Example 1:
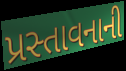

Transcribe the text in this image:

પ્રસ્તાવનાની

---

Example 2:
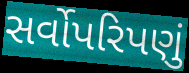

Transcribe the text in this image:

સર્વોપરિપણું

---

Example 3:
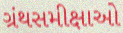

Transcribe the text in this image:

ગ્રંથસમીક્ષાઓ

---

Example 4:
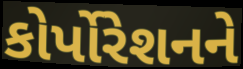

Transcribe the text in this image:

કોર્પોરેશનને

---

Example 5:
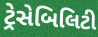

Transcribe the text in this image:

ટ્રેસેબિલિટી